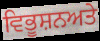
ਵਿਭੂਸ਼ਨਅਤੇ